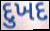
દુખદ